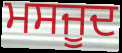
ਮਸਜੂਦ